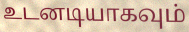
உடனடியாகவும்